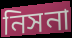
নিসনা